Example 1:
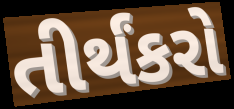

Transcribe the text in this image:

તીર્થંકરો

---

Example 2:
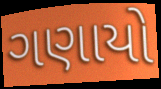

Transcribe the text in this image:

ગણાયો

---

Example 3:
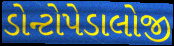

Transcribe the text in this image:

ડોન્ટોપેડાલોજી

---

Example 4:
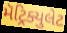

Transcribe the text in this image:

મૅટ્રિક્યુલેટ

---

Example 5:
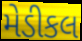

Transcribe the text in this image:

મેડીકલ